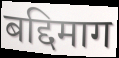
बद्दिमाग